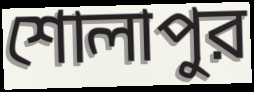
শোলাপুর